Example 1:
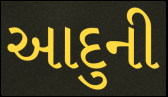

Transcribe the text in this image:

આદુની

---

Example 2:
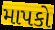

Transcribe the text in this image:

માપકો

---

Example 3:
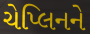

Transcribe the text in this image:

ચેપ્લિનને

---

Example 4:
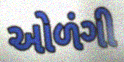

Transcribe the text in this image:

ઓળંગી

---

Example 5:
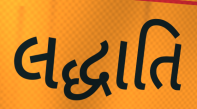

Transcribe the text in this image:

લદ્ધાતિ